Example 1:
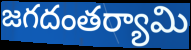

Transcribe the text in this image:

జగదంతర్యామి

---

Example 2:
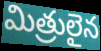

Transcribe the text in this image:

మిత్రులైన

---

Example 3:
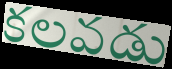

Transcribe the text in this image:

కలవడు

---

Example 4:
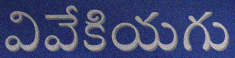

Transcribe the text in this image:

వివేకియగు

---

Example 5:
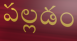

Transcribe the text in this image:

పల్లడం